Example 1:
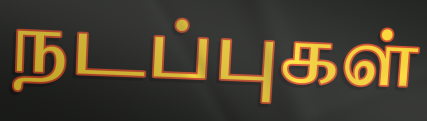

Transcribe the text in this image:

நடப்புகள்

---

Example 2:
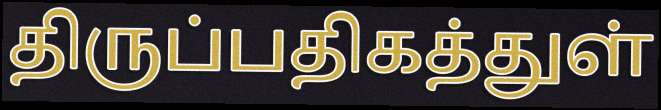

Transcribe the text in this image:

திருப்பதிகத்துள்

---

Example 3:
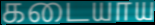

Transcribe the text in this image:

கடையாய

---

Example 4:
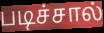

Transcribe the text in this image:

படிச்சால்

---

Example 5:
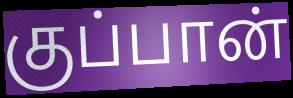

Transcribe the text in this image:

குப்பான்